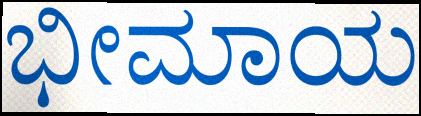
ಭೀಮಾಯ